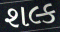
શલ્ક